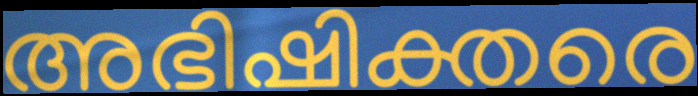
അഭിഷിക്തരെ